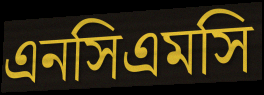
এনসিএমসি